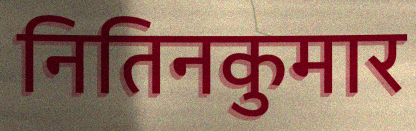
नितिनकुमार